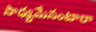
సాధ్యమేనంటారా